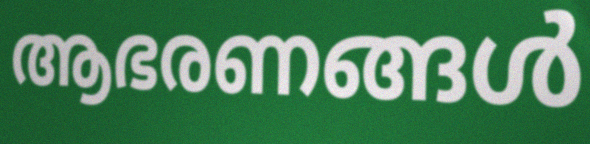
ആഭരണങ്ങൾ